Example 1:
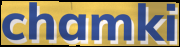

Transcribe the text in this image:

chamki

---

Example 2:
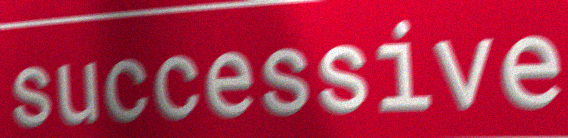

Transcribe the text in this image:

successive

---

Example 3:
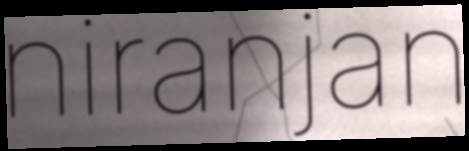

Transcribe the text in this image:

niranjan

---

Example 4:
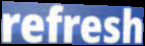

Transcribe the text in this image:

refresh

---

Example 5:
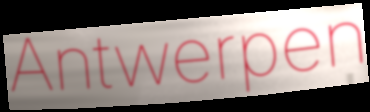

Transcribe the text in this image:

Antwerpen